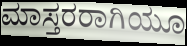
ಮಾಸ್ತರರಾಗಿಯೂ